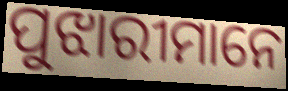
ପୁଝାରୀମାନେ